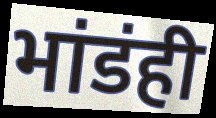
भांडंही